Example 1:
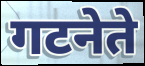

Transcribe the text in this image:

गटनेते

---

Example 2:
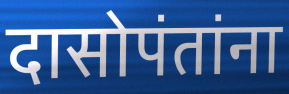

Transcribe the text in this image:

दासोपंतांना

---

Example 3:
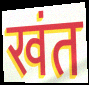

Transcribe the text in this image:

खंत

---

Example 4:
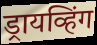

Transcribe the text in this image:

ड्रायव्हिंग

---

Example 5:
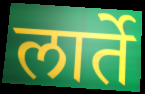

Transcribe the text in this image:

लार्ते